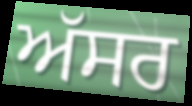
ਅੱਸਰ